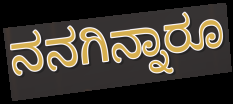
ನನಗಿನ್ನಾರೂ